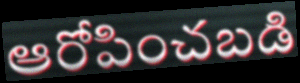
ఆరోపించబడి